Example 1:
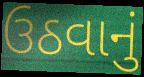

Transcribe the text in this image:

ઉઠવાનું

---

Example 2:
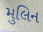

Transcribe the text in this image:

મુલિન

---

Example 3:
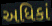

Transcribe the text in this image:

અધિકાં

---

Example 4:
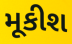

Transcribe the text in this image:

મૂકીશ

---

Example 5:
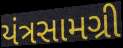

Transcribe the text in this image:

યંત્રસામગ્રી